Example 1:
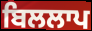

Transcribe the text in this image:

ਬਿਲਲਾਪ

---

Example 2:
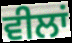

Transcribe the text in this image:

ਵੀਲਾਂ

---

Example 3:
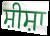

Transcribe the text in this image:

ਸ਼ੀਸ਼ਾ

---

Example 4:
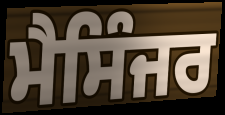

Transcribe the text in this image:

ਮੈਸਿੰਜਰ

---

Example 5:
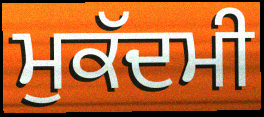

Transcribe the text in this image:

ਮੁਕੱਦਮੀ